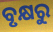
ବୃକ୍ଷରୁ